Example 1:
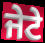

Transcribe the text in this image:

ਜੇਟੇ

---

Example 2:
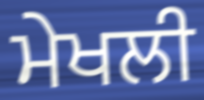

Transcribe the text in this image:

ਮੇਖਲੀ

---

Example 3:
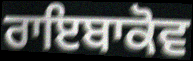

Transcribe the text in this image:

ਰਾਇਬਾਕੋਵ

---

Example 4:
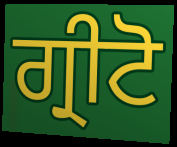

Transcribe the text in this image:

ਗ੍ਰੀਟੋ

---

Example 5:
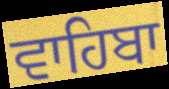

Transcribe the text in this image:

ਵਾਹਿਬਾ